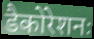
डैकोरेशनः